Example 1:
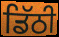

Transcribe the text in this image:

ਡਿੱਠੀ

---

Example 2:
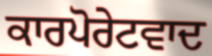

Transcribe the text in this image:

ਕਾਰਪੋਰੇਟਵਾਦ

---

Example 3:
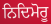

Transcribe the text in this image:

ਨਿਦਿਮੋਰੂ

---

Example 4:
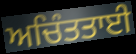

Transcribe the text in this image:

ਅਚਿੰਤਤਾਈ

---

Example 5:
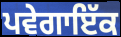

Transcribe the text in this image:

ਪਵੇਗਾਇੱਕ